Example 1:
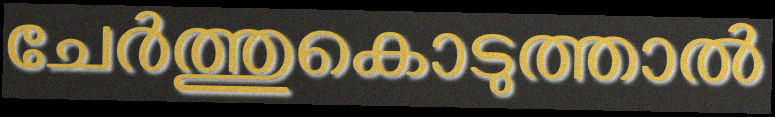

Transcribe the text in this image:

ചേർത്തുകൊടുത്താൽ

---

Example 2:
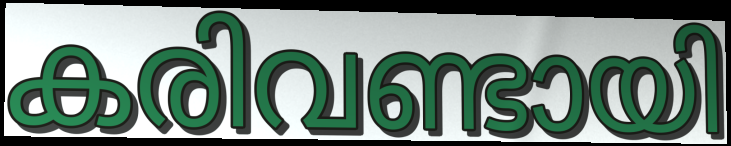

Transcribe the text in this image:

കരിവണ്ടായി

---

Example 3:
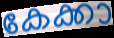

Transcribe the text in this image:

കേക്കാ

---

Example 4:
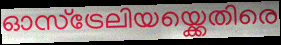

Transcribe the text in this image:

ഓസ്ട്രേലിയയ്ക്കെതിരെ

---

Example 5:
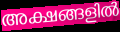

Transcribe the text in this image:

അക്ഷങ്ങളിൽ